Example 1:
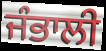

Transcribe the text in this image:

ਜੰਭਾਲੀ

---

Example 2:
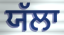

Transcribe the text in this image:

ਯੱਲਾ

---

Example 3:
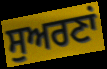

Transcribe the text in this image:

ਸੁਅਰਣਾਂ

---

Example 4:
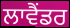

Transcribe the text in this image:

ਲਾਵੈਂਡਰ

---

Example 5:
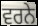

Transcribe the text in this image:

ਵਰਨੇ